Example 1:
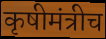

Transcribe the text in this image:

कृषीमंत्रीच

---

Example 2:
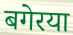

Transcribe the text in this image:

बगेरया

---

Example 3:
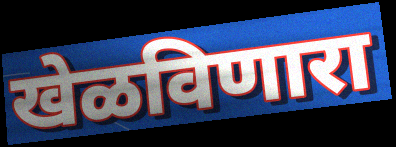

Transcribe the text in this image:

खेळविणारा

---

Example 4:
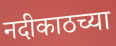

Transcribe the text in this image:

नदीकाठच्या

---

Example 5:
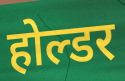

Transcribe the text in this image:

होल्डर